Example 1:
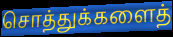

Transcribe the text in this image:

சொத்துக்களைத்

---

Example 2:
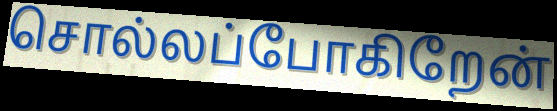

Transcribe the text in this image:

சொல்லப்போகிறேன்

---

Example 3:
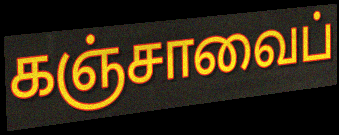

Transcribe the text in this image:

கஞ்சாவைப்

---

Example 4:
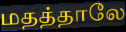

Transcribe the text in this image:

மதத்தாலே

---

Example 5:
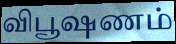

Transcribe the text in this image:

விபூஷணம்